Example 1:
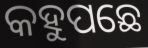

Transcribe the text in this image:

କହୁପଛେ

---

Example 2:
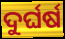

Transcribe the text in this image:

ଦୁର୍ଘର୍ଷ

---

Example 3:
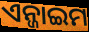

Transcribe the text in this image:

ଏନ୍ଜାଇମ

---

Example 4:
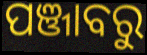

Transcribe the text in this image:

ପଞ୍ଜାବରୁ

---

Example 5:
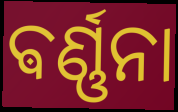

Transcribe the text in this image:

ଵର୍ଣ୍ଣନା